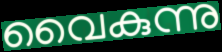
വൈകുന്നു